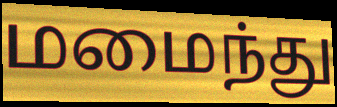
மமைந்து